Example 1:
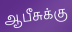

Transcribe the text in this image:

ஆபீசுக்கு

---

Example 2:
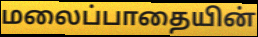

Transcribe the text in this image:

மலைப்பாதையின்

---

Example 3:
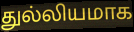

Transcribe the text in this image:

துல்லியமாக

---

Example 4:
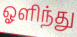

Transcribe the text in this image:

ஓளிந்து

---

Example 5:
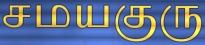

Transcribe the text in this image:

சமயகுரு